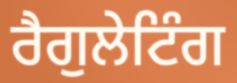
ਰੈਗੁਲੇਟਿੰਗ